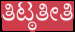
ತಿಟ್ಠತೀತಿ